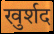
खुर्शद